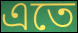
এতে